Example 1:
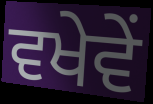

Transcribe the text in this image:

ਵਖੇਵੇਂ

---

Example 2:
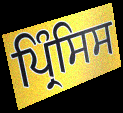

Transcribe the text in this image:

ਪ੍ਰਿੰਸਿਸ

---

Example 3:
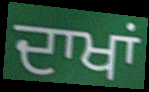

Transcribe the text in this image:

ਦਾਖਾਂ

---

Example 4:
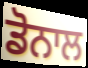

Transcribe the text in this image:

ਡੋਨਾਲ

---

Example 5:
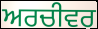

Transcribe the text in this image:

ਅਰਚੀਵਰ